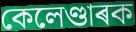
কেলেণ্ডাৰক